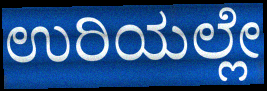
ಉರಿಯಲ್ಲೇ